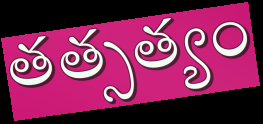
తత్సత్యం